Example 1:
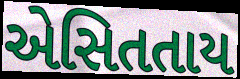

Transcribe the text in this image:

એસિતતાય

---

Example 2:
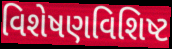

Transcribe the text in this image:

વિશેષણવિશિષ્ટ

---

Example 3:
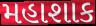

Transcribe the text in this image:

મહાશાક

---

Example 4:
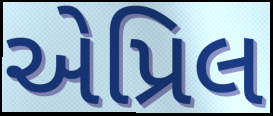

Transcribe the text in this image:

એપ્રિલ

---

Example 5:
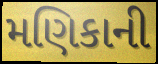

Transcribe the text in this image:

મણિકાની